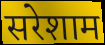
सरेशाम